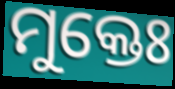
ମୁକ୍ତେଃ